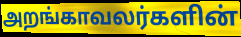
அறங்காவலர்களின்